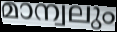
മാന്വലും